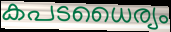
കപടധൈര്യം